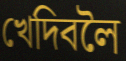
খেদিবলৈ